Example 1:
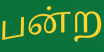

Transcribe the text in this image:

பன்ற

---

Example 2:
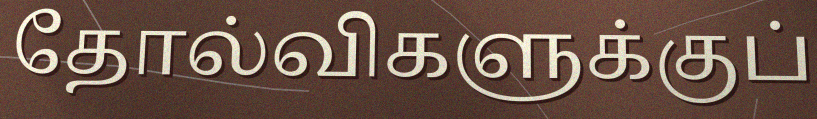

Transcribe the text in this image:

தோல்விகளுக்குப்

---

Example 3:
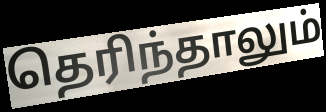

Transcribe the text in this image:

தெரிந்தாலும்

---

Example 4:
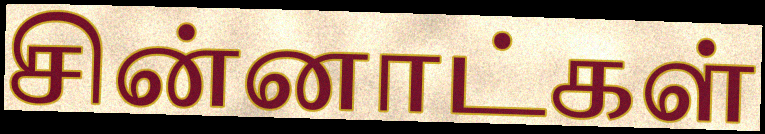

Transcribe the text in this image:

சின்னாட்கள்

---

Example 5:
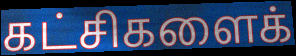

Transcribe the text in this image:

கட்சிகளைக்